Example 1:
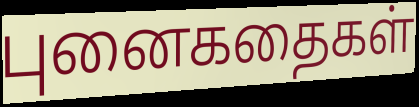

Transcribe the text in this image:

புனைகதைகள்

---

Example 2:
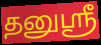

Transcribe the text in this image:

தனுஸ்ரீ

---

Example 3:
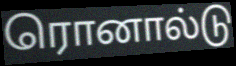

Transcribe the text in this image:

ரொனால்டு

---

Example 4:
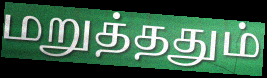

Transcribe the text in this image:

மறுத்ததும்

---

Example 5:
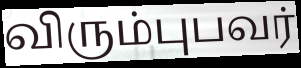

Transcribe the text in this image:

விரும்புபவர்